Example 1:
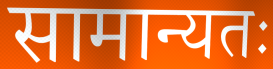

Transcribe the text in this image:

सामान्यतः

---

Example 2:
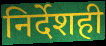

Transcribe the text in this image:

निर्देशही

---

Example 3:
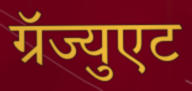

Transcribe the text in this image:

ग्रॅज्युएट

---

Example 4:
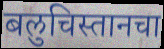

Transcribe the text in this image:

बलुचिस्तानचा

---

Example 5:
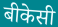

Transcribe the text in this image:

बीकेसी